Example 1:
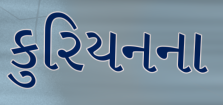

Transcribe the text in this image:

કુરિયનના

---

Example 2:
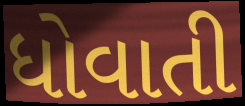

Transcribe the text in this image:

ધોવાતી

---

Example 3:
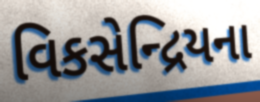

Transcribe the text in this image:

વિકસેન્દ્રિયના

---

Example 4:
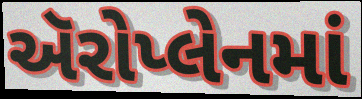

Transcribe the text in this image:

ઍરોપ્લેનમાં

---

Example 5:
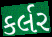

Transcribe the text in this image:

કર્લર